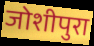
जोशीपुरा